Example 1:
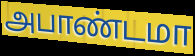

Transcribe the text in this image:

அபாண்டமா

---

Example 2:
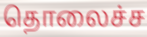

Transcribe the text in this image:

தொலைச்ச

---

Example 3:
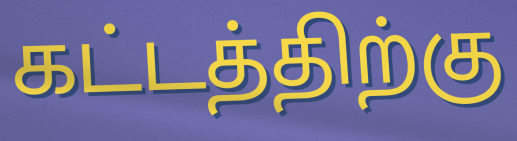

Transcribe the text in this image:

கட்டத்திற்கு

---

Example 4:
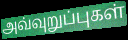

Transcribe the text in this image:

அவ்வுறுப்புகள்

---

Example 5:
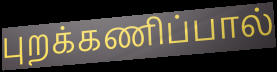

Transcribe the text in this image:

புறக்கணிப்பால்